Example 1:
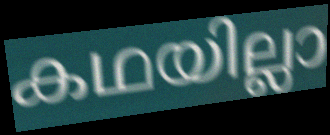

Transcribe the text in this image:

കഥയില്ലാ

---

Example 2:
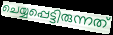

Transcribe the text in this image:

ചെയ്യപ്പെട്ടിരുന്നത്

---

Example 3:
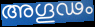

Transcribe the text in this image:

അഗൂഢം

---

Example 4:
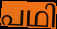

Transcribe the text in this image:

പഥി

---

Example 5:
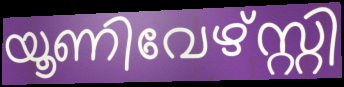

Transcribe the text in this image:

യൂണിവേഴ്സ്റ്റി